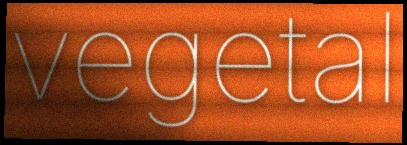
vegetal